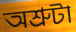
অশ্রুটা